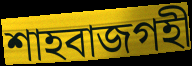
শাহবাজগহী